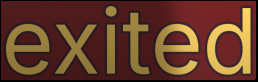
exited